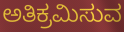
ಅತಿಕ್ರಮಿಸುವ